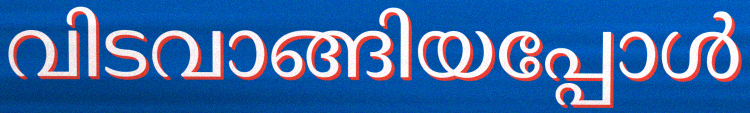
വിടവാങ്ങിയപ്പോൾ